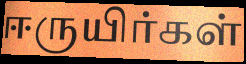
ஈருயிர்கள்